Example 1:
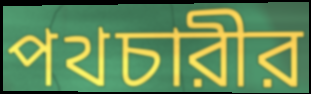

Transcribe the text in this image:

পথচারীর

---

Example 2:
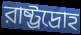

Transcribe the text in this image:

রাষ্ট্রদ্রোহ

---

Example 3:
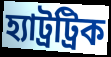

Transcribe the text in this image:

হ্যাট্রট্রিক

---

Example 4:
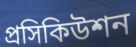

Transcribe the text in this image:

প্রসিকিউশন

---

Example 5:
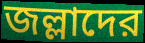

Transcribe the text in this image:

জল্লাদের